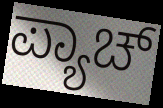
ಪ್ಯಾಚ್